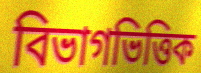
বিভাগভিত্তিক